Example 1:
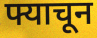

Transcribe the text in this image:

फ्याचून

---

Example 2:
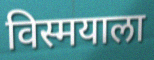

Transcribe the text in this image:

विस्मयाला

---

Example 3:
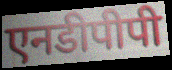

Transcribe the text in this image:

एनडीपीपी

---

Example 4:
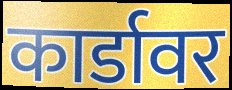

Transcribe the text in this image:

कार्डावर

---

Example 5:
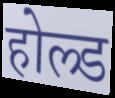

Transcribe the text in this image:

होल्ड